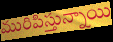
మురిపిస్తున్నాయి